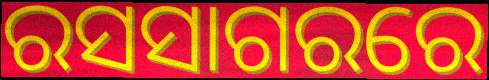
ରସସାଗରରେ